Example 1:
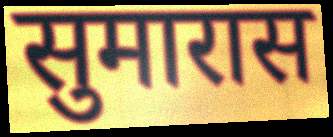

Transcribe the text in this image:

सुमारास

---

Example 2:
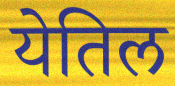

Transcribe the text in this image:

येतिल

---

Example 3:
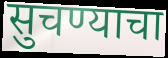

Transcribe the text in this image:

सुचण्याचा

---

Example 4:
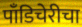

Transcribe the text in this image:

पाँडिचेरीचा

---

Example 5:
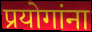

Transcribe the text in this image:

प्रयोगांना